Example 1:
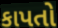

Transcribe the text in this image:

કાપતો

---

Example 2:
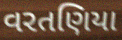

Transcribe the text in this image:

વરતણિયા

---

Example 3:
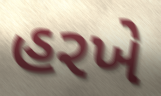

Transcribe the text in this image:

હરખે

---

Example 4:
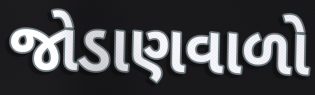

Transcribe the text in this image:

જોડાણવાળો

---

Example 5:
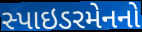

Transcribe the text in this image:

સ્પાઇડરમેનનો